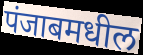
पंजाबमधील